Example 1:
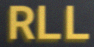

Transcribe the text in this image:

RLL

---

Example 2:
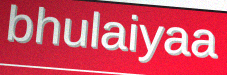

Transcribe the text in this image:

bhulaiyaa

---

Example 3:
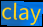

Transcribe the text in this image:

clay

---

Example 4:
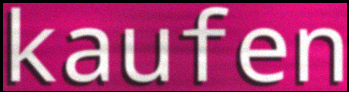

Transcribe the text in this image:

kaufen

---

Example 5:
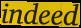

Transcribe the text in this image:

indeed